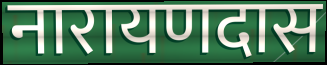
नारायणदास